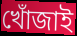
খোঁজাই